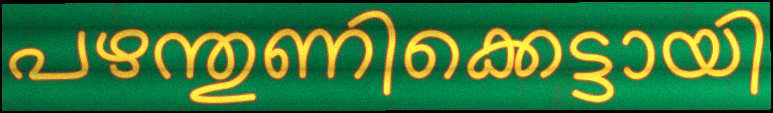
പഴന്തുണിക്കെട്ടായി